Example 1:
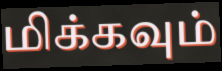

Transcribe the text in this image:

மிக்கவும்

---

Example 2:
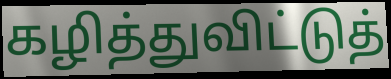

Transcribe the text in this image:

கழித்துவிட்டுத்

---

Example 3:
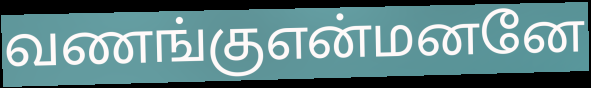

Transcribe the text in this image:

வணங்குஎன்மனனே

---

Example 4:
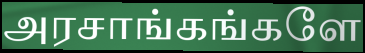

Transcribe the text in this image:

அரசாங்கங்களே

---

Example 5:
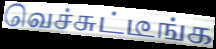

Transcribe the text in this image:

வெச்சுட்டீங்க